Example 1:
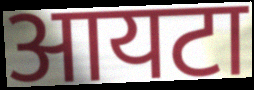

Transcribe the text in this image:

आयटा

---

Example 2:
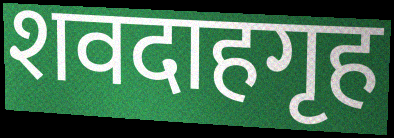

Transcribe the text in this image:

शवदाहगृह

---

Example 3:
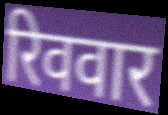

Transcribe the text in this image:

रिववार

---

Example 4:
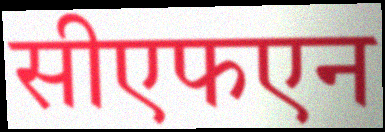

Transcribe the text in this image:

सीएफएन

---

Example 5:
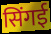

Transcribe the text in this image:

सिंगई